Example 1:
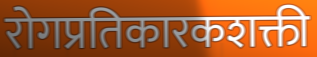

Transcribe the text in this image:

रोगप्रतिकारकशक्ती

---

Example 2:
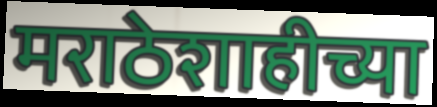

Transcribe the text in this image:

मराठेशाहीच्या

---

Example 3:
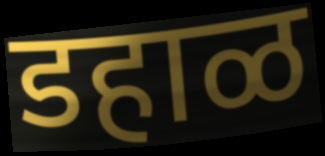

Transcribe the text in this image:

डहाळ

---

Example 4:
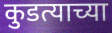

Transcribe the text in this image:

कुडत्याच्या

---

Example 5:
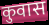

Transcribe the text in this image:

कुवास